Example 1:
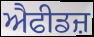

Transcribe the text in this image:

ਐਫੀਡਜ਼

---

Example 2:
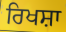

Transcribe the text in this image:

ਰਿਖਸ਼ਾ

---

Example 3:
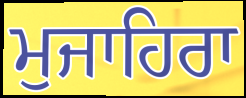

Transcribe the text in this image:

ਮੁਜਾਹਿਰਾ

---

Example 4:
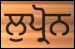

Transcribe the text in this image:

ਲੁਪ੍ਰੋਨ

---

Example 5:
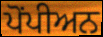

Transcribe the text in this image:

ਪੋਂਪੀਅਨ